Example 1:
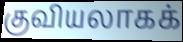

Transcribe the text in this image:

குவியலாகக்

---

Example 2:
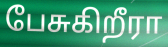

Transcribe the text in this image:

பேசுகிறீரா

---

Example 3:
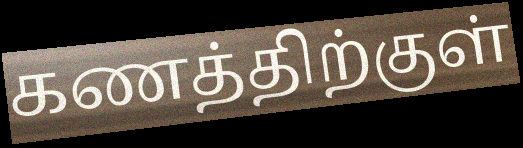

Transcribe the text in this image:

கணத்திற்குள்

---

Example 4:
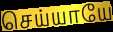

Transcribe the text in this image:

செய்யாயே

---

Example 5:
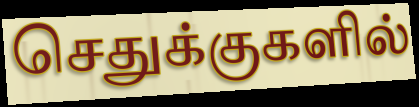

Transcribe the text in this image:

செதுக்குகளில்